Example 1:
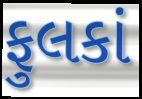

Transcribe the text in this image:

ફુલકાં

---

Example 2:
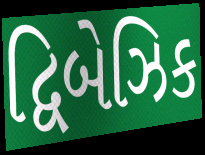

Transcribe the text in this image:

દ્વિબેઝિક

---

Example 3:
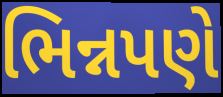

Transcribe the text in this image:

ભિન્નપણે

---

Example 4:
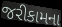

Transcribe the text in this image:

જરીકામના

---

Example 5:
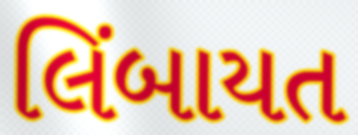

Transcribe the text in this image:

લિંબાયત